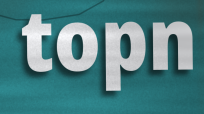
topn